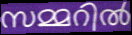
സമ്മറിൽ